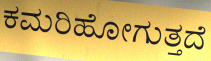
ಕಮರಿಹೋಗುತ್ತದೆ